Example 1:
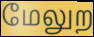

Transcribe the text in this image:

மேலுற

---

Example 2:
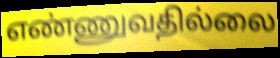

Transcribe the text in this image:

எண்ணுவதில்லை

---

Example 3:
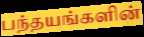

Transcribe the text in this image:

பந்தயங்களின்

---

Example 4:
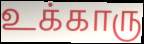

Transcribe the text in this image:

உக்காரு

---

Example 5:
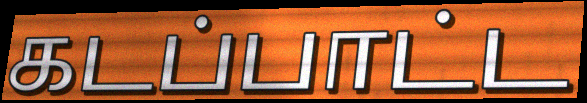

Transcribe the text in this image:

கடப்பாட்ட